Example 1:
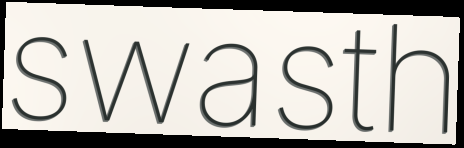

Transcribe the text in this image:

swasth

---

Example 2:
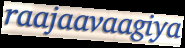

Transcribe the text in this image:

raajaavaagiya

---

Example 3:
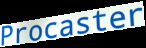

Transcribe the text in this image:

Procaster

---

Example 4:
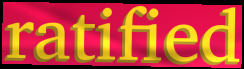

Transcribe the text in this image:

ratified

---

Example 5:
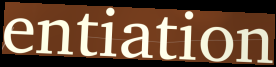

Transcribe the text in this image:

entiation